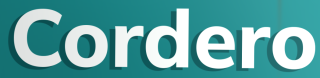
Cordero